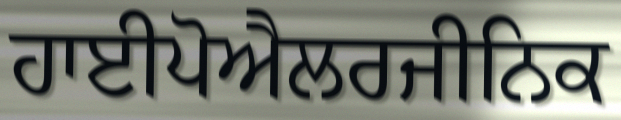
ਹਾਈਪੋਐਲਰਜੀਨਿਕ